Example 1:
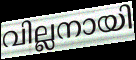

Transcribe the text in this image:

വില്ലനായി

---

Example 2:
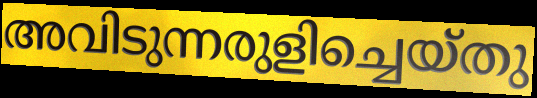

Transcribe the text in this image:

അവിടുന്നരുളിച്ചെയ്തു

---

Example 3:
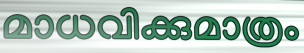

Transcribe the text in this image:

മാധവിക്കുമാത്രം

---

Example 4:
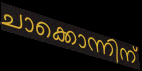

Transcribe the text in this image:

ചാക്കൊന്നിന്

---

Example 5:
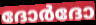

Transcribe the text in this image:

ദോർദോ